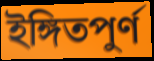
ইঙ্গিতপুর্ণ